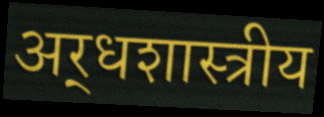
अर्धशास्त्रीय